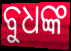
ବୁଧଙ୍କ